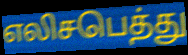
எலிசபெத்து